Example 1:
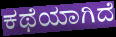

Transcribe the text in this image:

ಕಥೆಯಾಗಿದೆ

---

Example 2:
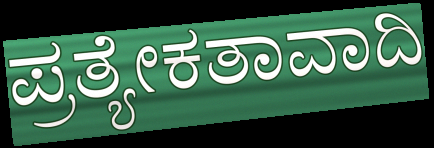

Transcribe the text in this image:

ಪ್ರತ್ಯೇಕತಾವಾದಿ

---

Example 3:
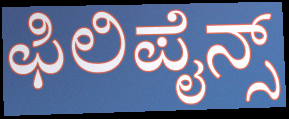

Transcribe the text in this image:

ಫಿಲಿಪೈನ್ಸ್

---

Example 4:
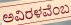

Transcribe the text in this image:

ಅವಿರಳವೆಂಬ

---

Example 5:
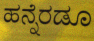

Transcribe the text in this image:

ಹನ್ನೆರಡೂ